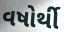
વષોર્થી